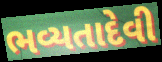
ભવ્યતાદેવી